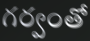
గర్వంతో